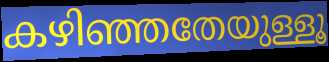
കഴിഞ്ഞതേയുള്ളൂ